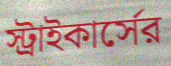
স্ট্রাইকার্সের